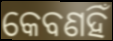
କେବଣହିଁ